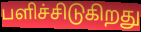
பளிச்சிடுகிறது